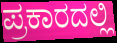
ಪ್ರಕಾರದಲ್ಲಿ